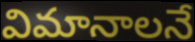
విమానాలనే